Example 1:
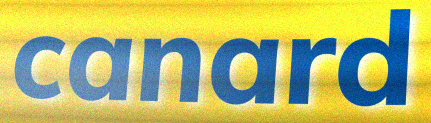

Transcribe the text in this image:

canard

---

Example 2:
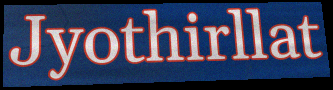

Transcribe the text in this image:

Jyothirllat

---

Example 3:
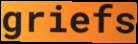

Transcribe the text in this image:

griefs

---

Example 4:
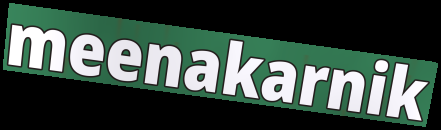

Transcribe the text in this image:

meenakarnik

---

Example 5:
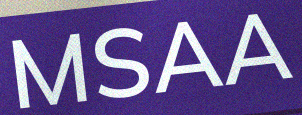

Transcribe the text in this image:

MSAA